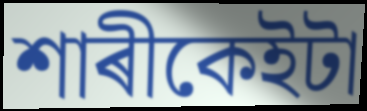
শাৰীকেইটা